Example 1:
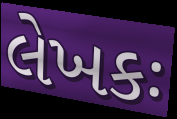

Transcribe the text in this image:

લેખકઃ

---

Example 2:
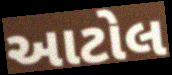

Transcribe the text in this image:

આટોલ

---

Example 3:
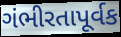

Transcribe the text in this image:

ગંભીરતાપૂર્વક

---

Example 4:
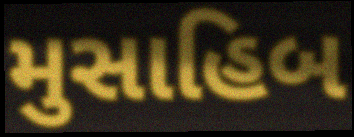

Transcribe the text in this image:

મુસાહિબ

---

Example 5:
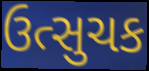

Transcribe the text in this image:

ઉત્સુચક